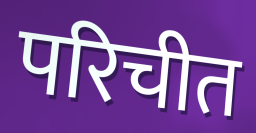
परिचीत